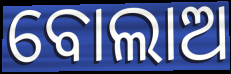
ବୋଲାଅ